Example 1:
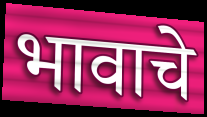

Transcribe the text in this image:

भावाचे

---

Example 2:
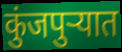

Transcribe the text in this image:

कुंजपुऱ्यात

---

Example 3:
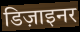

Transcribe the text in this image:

डिज़ाइनर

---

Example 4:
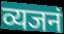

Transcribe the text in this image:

व्यजनं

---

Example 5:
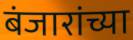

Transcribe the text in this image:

बंजारांच्या